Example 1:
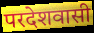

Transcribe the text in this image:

परदेशवासी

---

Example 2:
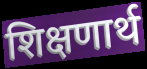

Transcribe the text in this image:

शिक्षणार्थ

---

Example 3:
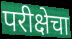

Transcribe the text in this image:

परीक्षेचा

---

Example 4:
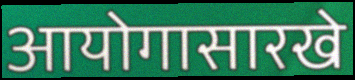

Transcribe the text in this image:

आयोगासारखे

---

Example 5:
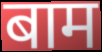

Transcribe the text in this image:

बाम